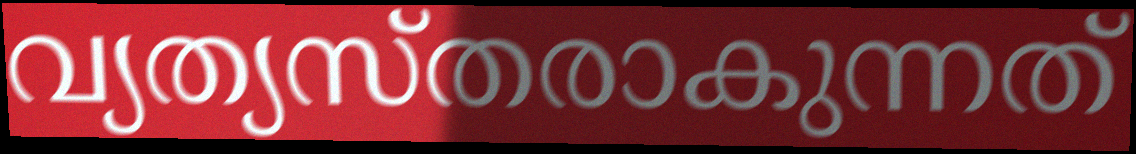
വ്യത്യസ്തരാകുന്നത്